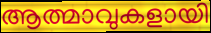
ആത്മാവുകളായി